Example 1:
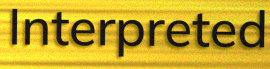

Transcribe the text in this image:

Interpreted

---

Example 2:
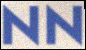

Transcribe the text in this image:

NN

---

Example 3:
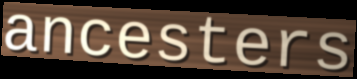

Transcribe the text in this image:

ancesters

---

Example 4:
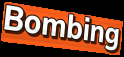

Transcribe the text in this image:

Bombing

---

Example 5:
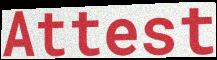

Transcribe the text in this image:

Attest